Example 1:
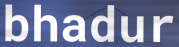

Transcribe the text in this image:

bhadur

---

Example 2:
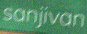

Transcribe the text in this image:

sanjivan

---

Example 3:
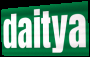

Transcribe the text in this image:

daitya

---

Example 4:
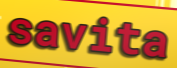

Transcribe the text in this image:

savita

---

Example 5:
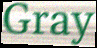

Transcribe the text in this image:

Gray